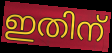
ഇതിന്